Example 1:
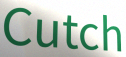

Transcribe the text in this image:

Cutch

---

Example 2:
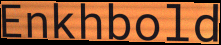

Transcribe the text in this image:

Enkhbold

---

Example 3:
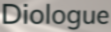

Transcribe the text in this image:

Diologue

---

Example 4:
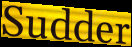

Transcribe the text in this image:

Sudder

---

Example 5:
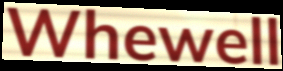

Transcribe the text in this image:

Whewell